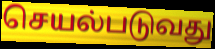
செயல்படுவது